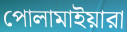
পোলামাইয়ারা